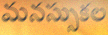
మనస్సుకల